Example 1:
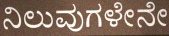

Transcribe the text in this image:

ನಿಲುವುಗಳೇನೇ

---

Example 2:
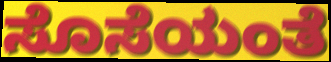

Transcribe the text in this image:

ಸೊಸೆಯಂತೆ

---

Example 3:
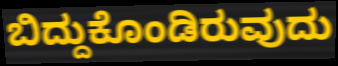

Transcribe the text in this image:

ಬಿದ್ದುಕೊಂಡಿರುವುದು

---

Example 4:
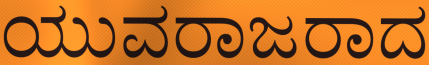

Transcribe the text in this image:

ಯುವರಾಜರಾದ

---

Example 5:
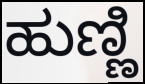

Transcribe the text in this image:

ಹುಣ್ಣಿ